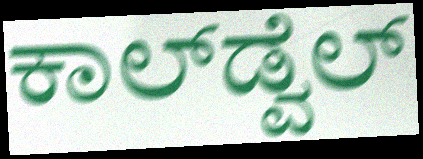
ಕಾಲ್‌ಡ್ವೆಲ್